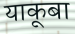
याकूबा